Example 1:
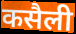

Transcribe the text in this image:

कसैली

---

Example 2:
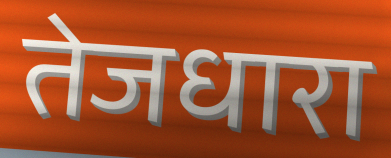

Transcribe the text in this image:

तेजधारा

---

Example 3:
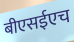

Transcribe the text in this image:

बीएसईएच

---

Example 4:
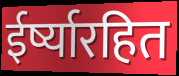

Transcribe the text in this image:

ईर्ष्यारहित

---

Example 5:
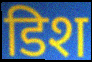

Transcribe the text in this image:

डिश